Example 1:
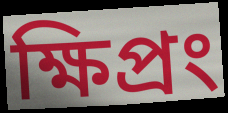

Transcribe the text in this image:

ক্ষিপ্রং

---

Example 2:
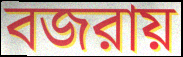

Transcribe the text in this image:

বজরায়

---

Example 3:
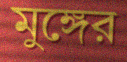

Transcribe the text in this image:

মুঙ্গের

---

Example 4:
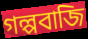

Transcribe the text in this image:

গল্পবাজি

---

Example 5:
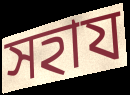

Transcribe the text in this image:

সহায